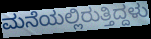
ಮನೆಯಲ್ಲಿರುತ್ತಿದ್ದಳು